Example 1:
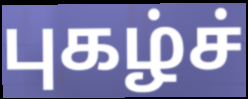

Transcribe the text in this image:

புகழ்ச்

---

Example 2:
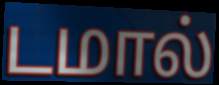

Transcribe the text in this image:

டமால்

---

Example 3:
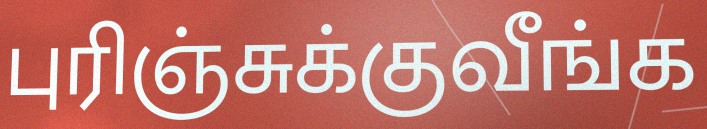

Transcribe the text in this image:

புரிஞ்சுக்குவீங்க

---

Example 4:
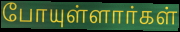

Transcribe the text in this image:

போயுள்ளார்கள்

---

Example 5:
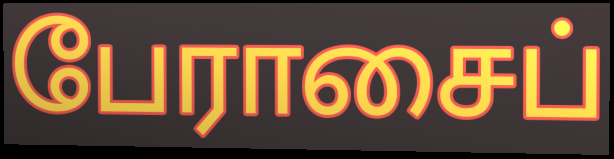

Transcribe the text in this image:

பேராசைப்